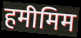
हमीमिम